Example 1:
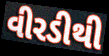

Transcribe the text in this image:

વીરડીથી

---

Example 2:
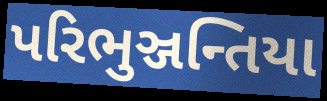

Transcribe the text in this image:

પરિભુઞ્જન્તિયા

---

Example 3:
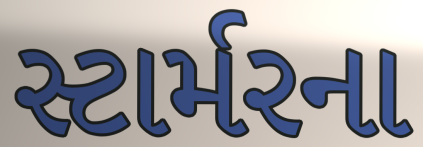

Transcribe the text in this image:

સ્ટાર્મરના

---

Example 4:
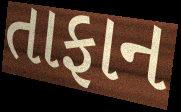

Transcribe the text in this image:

તાફાન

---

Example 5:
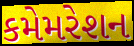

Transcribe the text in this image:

કમેમરેશન